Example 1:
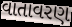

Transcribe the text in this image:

વાતાવરણ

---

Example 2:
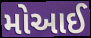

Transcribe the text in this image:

મોઆઈ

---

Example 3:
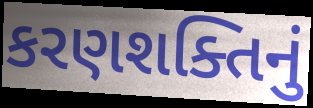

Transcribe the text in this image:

કરણશક્તિનું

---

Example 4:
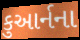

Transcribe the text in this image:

કુઆર્નના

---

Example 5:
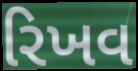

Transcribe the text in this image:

રિખવ